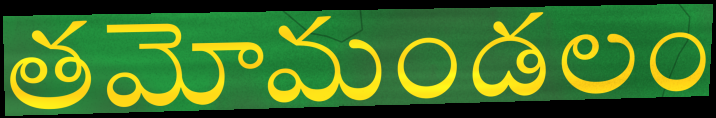
తమోమండలం